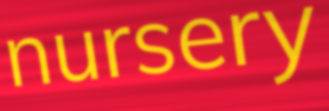
nursery